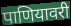
पाणियावरी